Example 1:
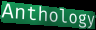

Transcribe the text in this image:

Anthology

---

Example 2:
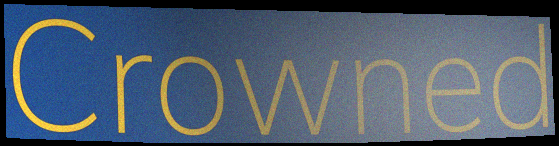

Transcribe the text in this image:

Crowned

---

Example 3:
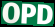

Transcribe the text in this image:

OPD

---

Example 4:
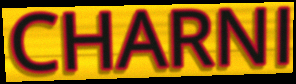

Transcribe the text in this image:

CHARNI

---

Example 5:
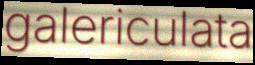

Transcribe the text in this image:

galericulata